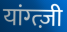
यांग्त्ज़ी